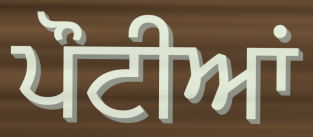
ਪੌਟੀਆਂ